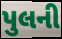
પુલની